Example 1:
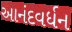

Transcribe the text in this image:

આનંદવર્ધન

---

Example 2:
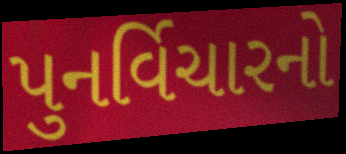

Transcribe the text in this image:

પુનર્વિચારનો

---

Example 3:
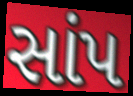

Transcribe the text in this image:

સાંપ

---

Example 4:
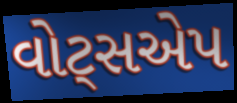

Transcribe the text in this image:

વોટ્સએપ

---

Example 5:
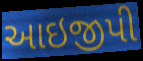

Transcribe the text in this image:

આઇજીપી